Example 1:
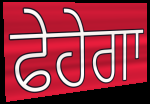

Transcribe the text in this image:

ਫੇਹੇਗਾ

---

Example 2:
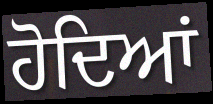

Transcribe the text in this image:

ਹੋਦਿਆਂ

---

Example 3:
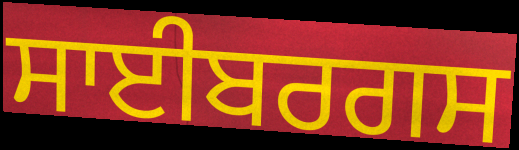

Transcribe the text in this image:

ਸਾਈਬਰਗਸ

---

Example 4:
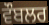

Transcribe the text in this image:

ਵੌਬਲਰ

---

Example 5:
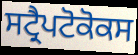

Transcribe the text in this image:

ਸਟ੍ਰੈਪਟੋਕੋਕਸ